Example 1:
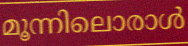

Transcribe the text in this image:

മൂന്നിലൊരാൾ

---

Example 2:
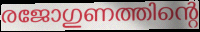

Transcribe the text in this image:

രജോഗുണത്തിന്റെ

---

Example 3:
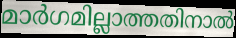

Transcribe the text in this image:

മാർഗമില്ലാത്തതിനാൽ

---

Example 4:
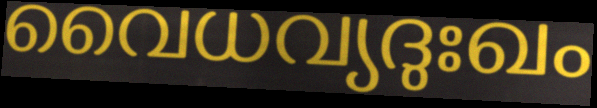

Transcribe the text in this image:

വൈധവ്യദുഃഖം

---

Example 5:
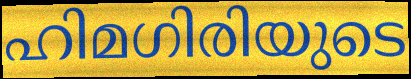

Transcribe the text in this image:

ഹിമഗിരിയുടെ